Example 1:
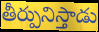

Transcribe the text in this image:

తీర్పునిస్తాడు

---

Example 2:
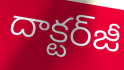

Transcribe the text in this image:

దాక్టర్‌జీ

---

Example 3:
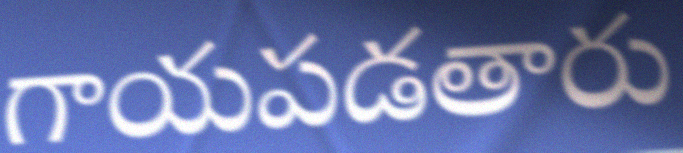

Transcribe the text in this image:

గాయపడతారు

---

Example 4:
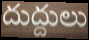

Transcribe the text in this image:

దుద్దులు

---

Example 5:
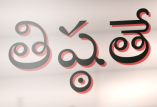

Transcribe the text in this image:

తిష్ఠతే